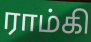
ராம்கி